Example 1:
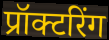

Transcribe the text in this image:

प्रॉक्टरिंग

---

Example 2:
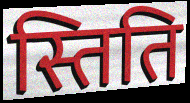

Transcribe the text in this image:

स्तिति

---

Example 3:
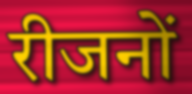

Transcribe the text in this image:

रीजनों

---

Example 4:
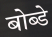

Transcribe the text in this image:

बोब्डे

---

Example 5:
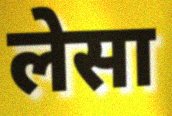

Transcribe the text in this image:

लेसा